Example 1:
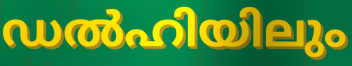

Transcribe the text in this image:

ഡൽഹിയിലും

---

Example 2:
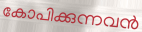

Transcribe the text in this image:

കോപിക്കുന്നവൻ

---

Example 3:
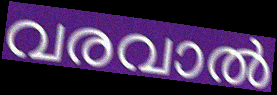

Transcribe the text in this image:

വരവാൽ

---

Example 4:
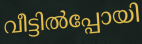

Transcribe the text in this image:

വീട്ടിൽപ്പോയി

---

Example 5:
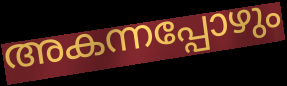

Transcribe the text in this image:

അകന്നപ്പോഴും